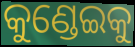
କୁଣ୍ଡେଇକୁ